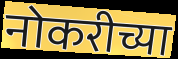
नोकरीच्या